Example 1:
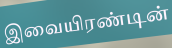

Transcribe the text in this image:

இவையிரண்டின்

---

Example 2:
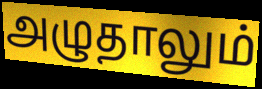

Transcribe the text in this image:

அழுதாலும்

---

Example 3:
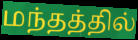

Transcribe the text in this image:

மந்தத்தில்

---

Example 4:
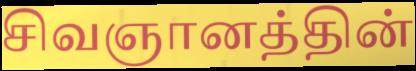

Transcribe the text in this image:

சிவஞானத்தின்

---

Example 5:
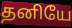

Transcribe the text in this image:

தனியே